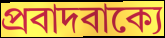
প্রবাদবাক্যে